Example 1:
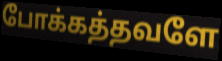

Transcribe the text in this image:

போக்கத்தவளே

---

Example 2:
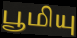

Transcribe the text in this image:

பூமியு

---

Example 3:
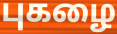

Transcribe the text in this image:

புகழை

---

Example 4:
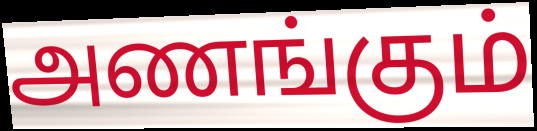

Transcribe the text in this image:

அணங்கும்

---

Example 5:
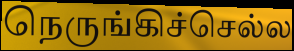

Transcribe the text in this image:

நெருங்கிச்செல்ல